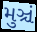
મુઞ્ચં